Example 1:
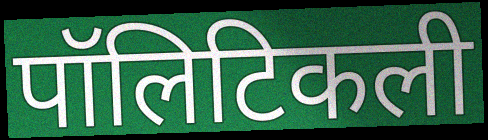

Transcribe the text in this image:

पॉलिटिकली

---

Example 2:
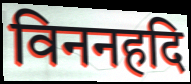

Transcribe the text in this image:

विननहदि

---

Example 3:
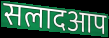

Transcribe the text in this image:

सलादआप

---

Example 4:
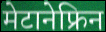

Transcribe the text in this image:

मेटानेफ्रिन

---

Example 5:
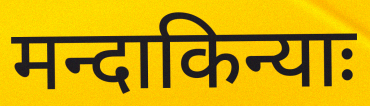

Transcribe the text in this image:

मन्दाकिन्याः